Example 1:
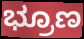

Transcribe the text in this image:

ಭ್ರೂಣ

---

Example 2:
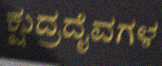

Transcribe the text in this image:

ಕ್ಷುದ್ರದೈವಗಳ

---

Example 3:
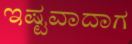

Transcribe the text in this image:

ಇಷ್ಟವಾದಾಗ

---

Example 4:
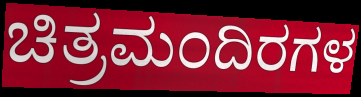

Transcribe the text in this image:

ಚಿತ್ರಮಂದಿರಗಳ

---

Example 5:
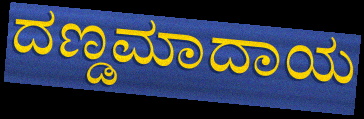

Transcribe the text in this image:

ದಣ್ಡಮಾದಾಯ